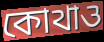
কোথাও